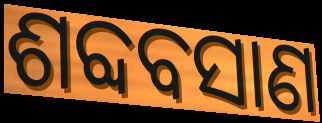
ଶବ୍ଦବସାଣ